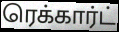
ரெக்கார்ட்